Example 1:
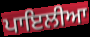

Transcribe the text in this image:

ਪਾਇਲੀਆ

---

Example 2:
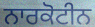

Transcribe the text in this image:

ਨਾਰਕੋਟੀਨ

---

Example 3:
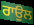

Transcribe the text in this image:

ਰਾਉਲ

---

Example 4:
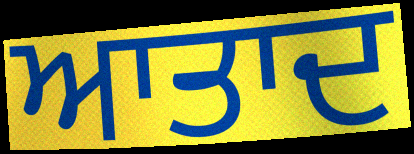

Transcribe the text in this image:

ਆਤਾਦ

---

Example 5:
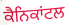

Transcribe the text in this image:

ਕੈਨਿਕਾਂਟਲ